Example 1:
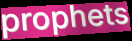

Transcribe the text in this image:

prophets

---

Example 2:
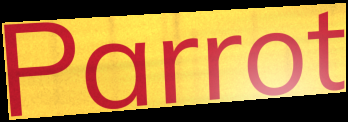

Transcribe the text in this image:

Parrot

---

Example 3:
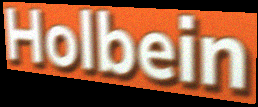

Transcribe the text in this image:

Holbein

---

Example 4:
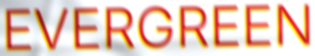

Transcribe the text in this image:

EVERGREEN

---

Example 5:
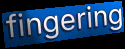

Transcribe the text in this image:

fingering